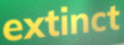
extinct